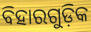
ବିହାରଗୁଡ଼ିକ